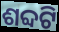
ଶବ୍ଦଟି